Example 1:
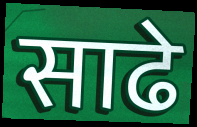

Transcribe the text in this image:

साढे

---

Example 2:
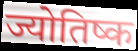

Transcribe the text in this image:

ज्योतिष्क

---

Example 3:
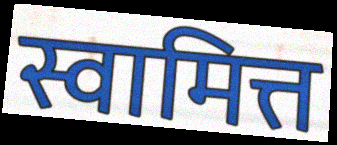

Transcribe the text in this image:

स्वामित्त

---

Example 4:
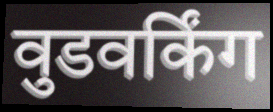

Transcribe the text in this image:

वुडवर्किंग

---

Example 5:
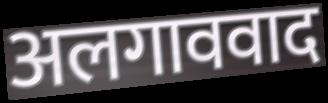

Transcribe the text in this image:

अलगाववाद